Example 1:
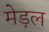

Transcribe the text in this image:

मेड़ल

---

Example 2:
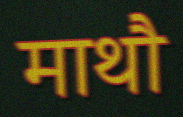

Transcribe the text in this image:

माथौ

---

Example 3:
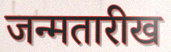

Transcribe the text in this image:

जन्मतारीख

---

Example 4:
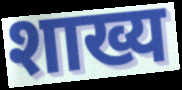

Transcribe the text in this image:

शाख्य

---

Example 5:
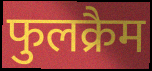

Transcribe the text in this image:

फुलक्रैम